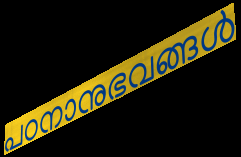
പഠനാനുഭവങ്ങൾ